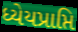
ધ્યેયપ્રાપ્તિ